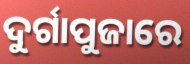
ଦୁର୍ଗାପୁଜାରେ